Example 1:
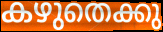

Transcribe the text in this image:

കഴുതെക്കു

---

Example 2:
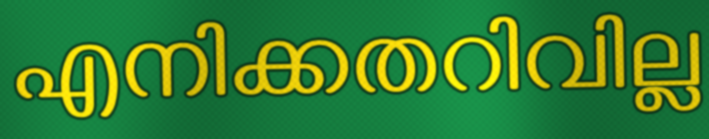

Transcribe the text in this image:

എനിക്കതറിവില്ല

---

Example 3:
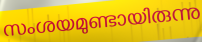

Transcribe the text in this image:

സംശയമുണ്ടായിരുന്നു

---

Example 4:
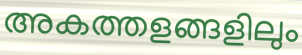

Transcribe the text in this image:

അകത്തളങ്ങളിലും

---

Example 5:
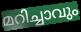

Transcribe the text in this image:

മറിച്ചാവും